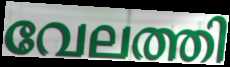
വേലത്തി